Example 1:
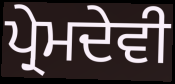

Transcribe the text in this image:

ਪ੍ਰੇਮਦੇਵੀ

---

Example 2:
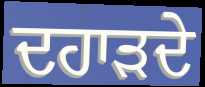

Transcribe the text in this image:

ਦਹਾੜਦੇ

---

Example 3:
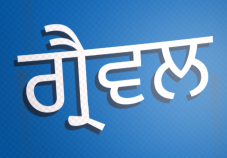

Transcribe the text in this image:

ਗ੍ਰੈਵਲ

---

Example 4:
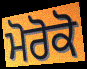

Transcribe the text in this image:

ਮੋਰੋਕੋ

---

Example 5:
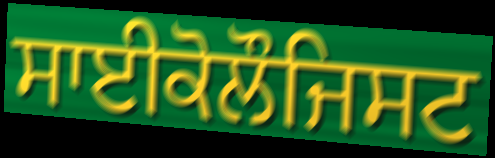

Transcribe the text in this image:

ਸਾਈਕੋਲੌਜਿਸਟ